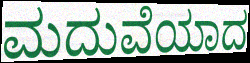
ಮದುವೆಯಾದ